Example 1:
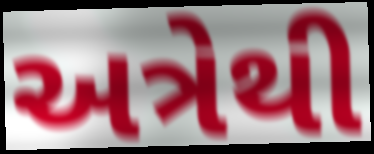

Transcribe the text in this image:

અત્રેથી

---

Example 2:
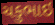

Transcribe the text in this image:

ચકુભાઇ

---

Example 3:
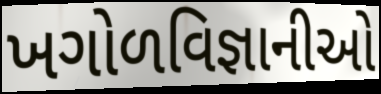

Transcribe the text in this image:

ખગોળવિજ્ઞાનીઓ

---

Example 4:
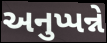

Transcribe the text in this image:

અનુપ્પન્ને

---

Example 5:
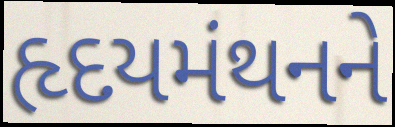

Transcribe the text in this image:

હૃદયમંથનને